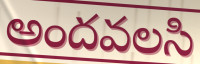
అందవలసి